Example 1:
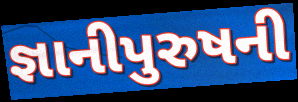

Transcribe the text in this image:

જ્ઞાનીપુરુષની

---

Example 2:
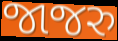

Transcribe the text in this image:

જાજરુ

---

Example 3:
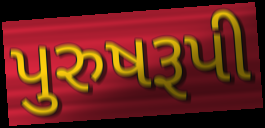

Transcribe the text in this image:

પુરુષરૂપી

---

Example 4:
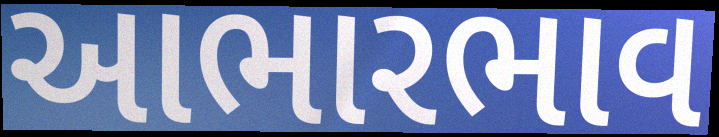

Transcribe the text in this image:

આભારભાવ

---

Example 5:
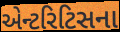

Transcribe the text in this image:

એન્ટરિટિસના